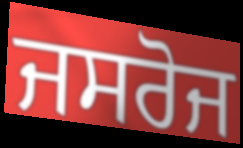
ਜਸਰੋਜ